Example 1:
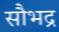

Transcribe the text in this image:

सौभद्र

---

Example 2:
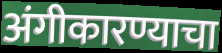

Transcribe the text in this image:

अंगीकारण्याचा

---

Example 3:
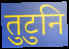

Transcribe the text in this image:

तुटुनि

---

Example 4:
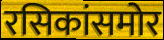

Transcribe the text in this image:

रसिकांसमोर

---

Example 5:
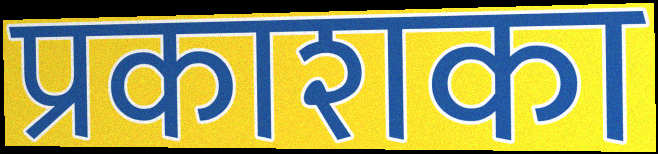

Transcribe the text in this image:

प्रकाशका